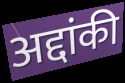
अद्दांकी